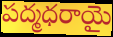
పద్మధరాయై